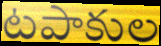
టపాకుల